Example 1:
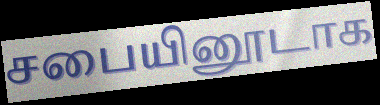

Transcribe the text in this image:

சபையினூடாக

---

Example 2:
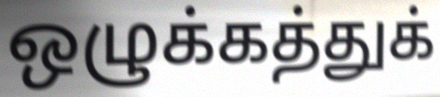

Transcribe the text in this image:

ஒழுக்கத்துக்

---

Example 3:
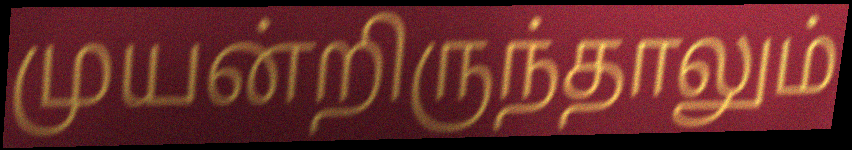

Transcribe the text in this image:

முயன்றிருந்தாலும்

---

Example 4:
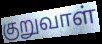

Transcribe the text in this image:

குறுவாள்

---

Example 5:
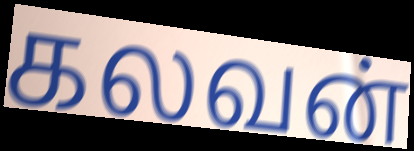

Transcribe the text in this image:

கலவன்